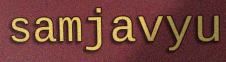
samjavyu